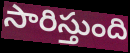
సారిస్తుంది